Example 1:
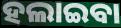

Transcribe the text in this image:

ହଲାଇବା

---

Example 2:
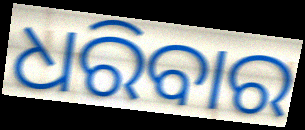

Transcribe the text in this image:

ଧରିବାର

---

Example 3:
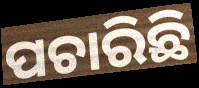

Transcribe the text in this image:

ପଚାରିଛି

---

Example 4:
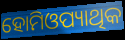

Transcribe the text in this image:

ହୋମିଓପ୍ୟାଥିକ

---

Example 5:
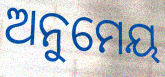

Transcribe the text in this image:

ଅନୁମେୟ